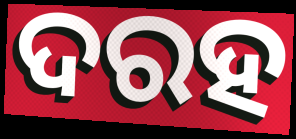
ଦରହ